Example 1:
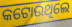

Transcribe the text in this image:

କଟୋଉଥିଲେ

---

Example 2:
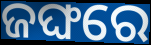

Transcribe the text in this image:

ଜଙ୍ଘରେ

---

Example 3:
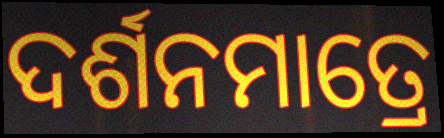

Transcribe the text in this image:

ଦର୍ଶନମାତ୍ରେ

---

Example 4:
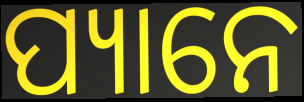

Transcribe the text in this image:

ପ୍ୟାନେ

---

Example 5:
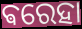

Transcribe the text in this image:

ଵରେହା